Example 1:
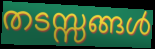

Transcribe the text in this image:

തടസ്സങ്ങൾ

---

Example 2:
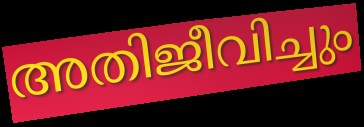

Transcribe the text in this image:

അതിജീവിച്ചും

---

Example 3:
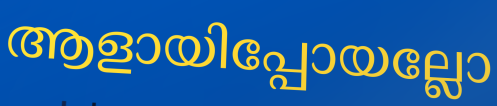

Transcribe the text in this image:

ആളായിപ്പോയല്ലോ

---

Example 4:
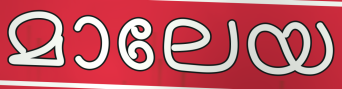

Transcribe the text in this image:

മാലേയ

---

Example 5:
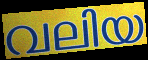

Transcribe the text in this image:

വലിയ